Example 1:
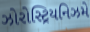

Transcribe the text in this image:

ઝોરોસ્ટ્રિયનિઝમે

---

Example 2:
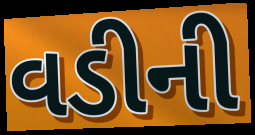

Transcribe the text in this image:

વડીની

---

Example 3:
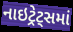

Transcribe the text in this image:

નાઇટ્રેટ્સમાં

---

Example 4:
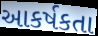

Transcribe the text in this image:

આકર્ષકતા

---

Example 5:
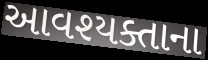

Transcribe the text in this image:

આવશ્યક્તાના